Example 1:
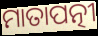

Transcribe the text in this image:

ମାତାପତ୍ନୀ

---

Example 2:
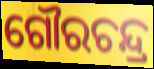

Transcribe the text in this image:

ଗୌରଚନ୍ଦ୍ର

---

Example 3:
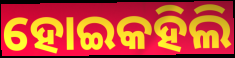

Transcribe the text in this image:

ହୋଇକହିଲି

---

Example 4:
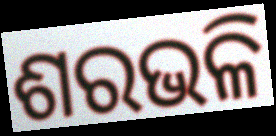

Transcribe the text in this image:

ଶରଭଳି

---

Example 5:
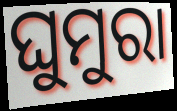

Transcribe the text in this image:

ଘୁମୁରା